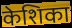
केशिका